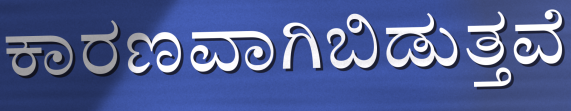
ಕಾರಣವಾಗಿಬಿಡುತ್ತವೆ